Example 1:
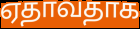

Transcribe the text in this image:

ஏதாவதாக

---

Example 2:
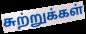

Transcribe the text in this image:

சுற்றுக்கள்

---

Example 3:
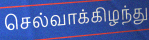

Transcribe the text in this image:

செல்வாக்கிழந்து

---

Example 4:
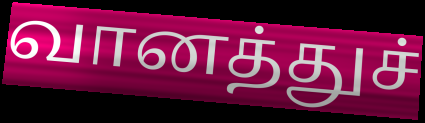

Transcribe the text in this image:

வானத்துச்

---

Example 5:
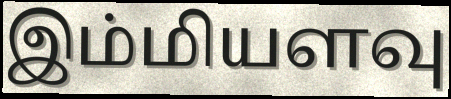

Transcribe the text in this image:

இம்மியளவு